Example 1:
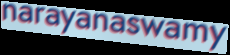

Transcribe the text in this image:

narayanaswamy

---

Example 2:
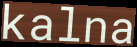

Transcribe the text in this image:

kalna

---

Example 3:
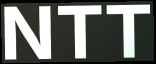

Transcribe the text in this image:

NTT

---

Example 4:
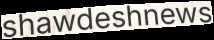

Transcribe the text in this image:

shawdeshnews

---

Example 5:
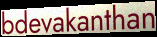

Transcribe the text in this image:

bdevakanthan